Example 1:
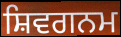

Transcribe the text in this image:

ਸ਼ਿਵਗਨਮ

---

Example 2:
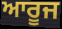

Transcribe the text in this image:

ਆਰੂਜ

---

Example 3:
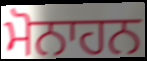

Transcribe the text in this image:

ਮੋਨਾਹਨ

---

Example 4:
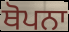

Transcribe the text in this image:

ਥੋਪਨਾ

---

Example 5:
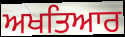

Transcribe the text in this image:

ਅਖਤਿਆਰ